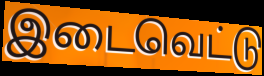
இடைவெட்டு